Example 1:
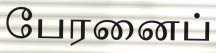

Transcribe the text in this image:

பேரனைப்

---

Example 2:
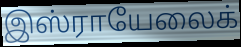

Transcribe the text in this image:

இஸ்ராயேலைக்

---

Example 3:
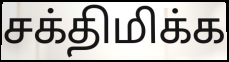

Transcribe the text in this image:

சக்திமிக்க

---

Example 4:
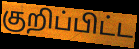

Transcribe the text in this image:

குறிப்பிட்ட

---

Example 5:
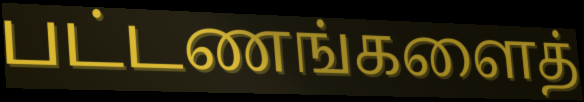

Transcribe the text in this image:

பட்டணங்களைத்